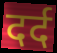
दर्द